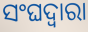
ସଂଘଦ୍ୱାରା